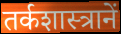
तर्कशास्त्रानें